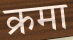
क्रमा